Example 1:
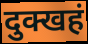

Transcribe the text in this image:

दुक्खहं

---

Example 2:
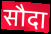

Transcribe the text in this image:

सौदा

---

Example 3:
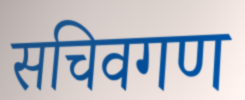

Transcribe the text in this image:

सचिवगण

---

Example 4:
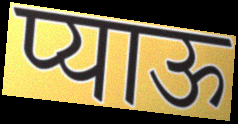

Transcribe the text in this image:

प्याऊ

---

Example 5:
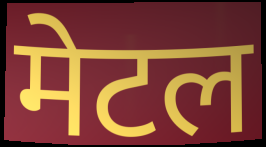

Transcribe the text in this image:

मेटल